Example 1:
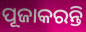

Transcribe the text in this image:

ପୂଜାକରନ୍ତି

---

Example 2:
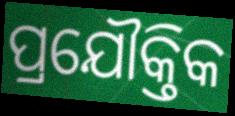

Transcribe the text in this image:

ପ୍ରଯୌକ୍ତିକ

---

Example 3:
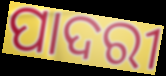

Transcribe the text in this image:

ପାଦରୀ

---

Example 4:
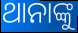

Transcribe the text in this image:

ଥାନାଙ୍କୁ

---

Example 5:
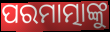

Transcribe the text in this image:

ପରମାତ୍ମାଙ୍କୁ